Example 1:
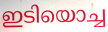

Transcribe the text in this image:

ഇടിയൊച്ച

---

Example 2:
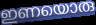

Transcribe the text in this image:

ഇണയൊരു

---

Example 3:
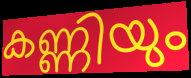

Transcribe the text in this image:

കണ്ണിയും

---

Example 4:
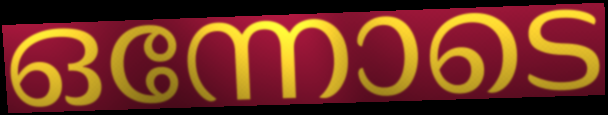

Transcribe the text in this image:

ഒന്നോടെ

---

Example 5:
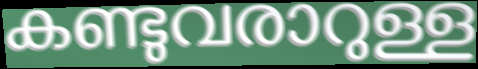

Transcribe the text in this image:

കണ്ടുവരാറുള്ള